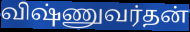
விஷ்ணுவர்தன்